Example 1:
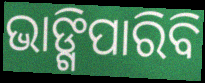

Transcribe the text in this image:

ଭାଙ୍ଗିପାରିବି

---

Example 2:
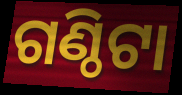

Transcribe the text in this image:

ଗଣ୍ଠିଟା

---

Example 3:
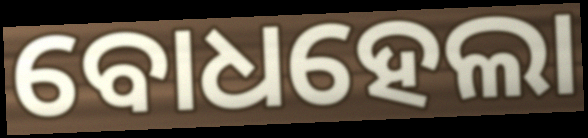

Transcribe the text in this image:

ବୋଧହେଲା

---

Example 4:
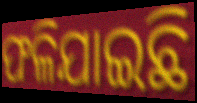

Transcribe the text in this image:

ଫଳିଯାଇଛି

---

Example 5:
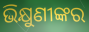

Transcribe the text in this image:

ଭିକ୍ଷୁଣୀଙ୍କର